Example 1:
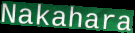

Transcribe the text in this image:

Nakahara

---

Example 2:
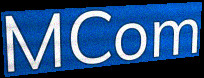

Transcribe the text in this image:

MCom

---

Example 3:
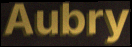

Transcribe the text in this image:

Aubry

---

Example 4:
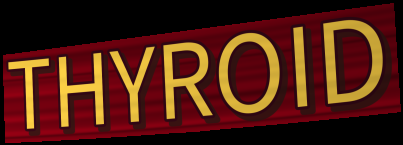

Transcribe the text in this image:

THYROID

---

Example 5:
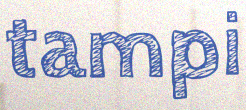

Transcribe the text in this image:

tampi